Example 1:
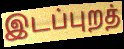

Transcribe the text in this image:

இடப்புறத்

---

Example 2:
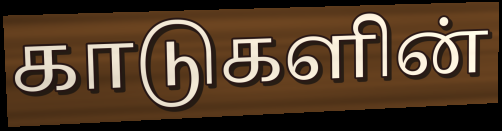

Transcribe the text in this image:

காடுகளின்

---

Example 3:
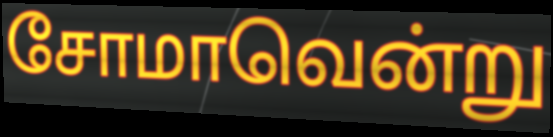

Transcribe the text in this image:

சோமாவென்று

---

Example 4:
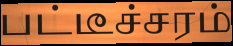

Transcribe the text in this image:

பட்டீச்சரம்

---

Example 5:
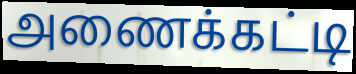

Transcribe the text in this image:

அணைக்கட்டி